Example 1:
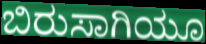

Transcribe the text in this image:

ಬಿರುಸಾಗಿಯೂ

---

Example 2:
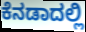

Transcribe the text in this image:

ಕೆನಡಾದಲ್ಲಿ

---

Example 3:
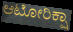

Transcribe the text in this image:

ಆಟೋರಿಕ್ಷಾ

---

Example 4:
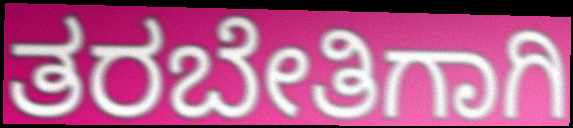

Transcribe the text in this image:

ತರಬೇತಿಗಾಗಿ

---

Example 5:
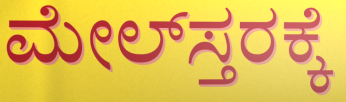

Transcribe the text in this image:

ಮೇಲ್‌ಸ್ತರಕ್ಕೆ